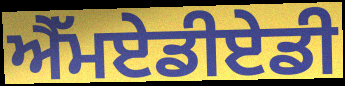
ਐੱਮਏਡੀਏਡੀ